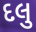
દલુ